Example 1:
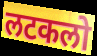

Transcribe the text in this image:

लटकलो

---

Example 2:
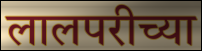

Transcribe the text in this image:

लालपरीच्या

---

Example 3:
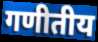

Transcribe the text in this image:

गणीतीय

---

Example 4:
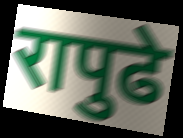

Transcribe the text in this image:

रापुढे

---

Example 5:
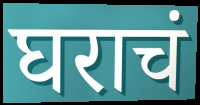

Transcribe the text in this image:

घराचं